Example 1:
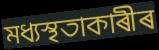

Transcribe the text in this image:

মধ্যস্থতাকাৰীৰ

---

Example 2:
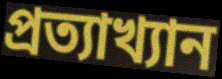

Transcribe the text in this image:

প্ৰত্যাখ্যান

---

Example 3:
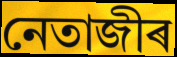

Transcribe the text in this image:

নেতাজীৰ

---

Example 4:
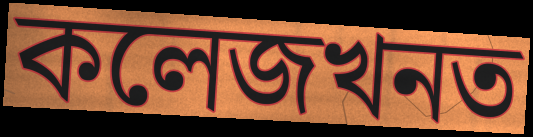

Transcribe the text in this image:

কলেজখনত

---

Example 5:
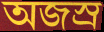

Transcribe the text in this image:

অজস্ৰ